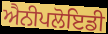
ਐਨੀਪਲੋਇਡੀ